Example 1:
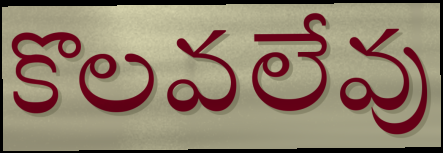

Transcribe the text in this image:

కొలవలేవు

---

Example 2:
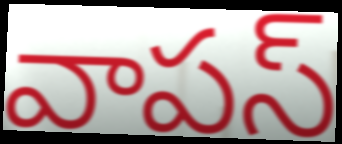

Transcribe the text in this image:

వాపస్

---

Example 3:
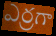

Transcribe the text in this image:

ఎర్రగా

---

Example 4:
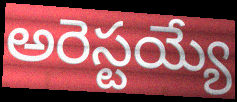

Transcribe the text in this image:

అరెస్టయ్యే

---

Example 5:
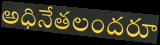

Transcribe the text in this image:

అధినేతలందరూ